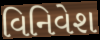
વિનિવેશ